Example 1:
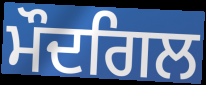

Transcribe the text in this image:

ਮੌਦਗਿਲ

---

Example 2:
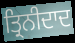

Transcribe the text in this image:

ਤ੍ਰਿਨੀਦਾਦ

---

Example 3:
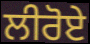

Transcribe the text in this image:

ਲੀਰੋਏ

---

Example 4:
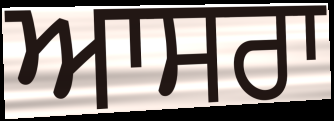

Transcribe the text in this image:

ਆਸਰਾ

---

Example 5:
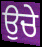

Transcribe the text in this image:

ਉਚੇ